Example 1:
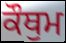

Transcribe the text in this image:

ਕੌਥੁਮ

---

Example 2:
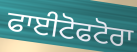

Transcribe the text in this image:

ਫਾਈਟੋਫਟੋਰਾ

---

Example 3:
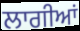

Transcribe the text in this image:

ਲਾਗੀਆਂ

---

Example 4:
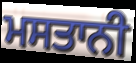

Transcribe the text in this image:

ਮਸਤਾਨੀ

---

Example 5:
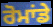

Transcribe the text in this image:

ਰੋਮਾਂਡੇ